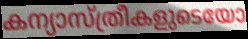
കന്യാസ്ത്രീകളുടെയോ